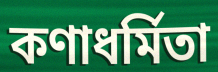
কণাধর্মিতা